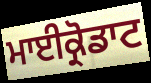
ਮਾਈਕ੍ਰੋਡਾਟ